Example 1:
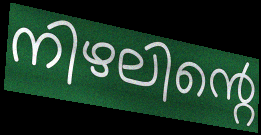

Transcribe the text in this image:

നിഴലിന്റെ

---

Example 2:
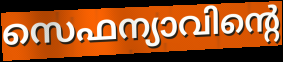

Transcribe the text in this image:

സെഫന്യാവിന്റെ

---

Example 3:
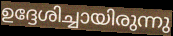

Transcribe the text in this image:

ഉദ്ദേശിച്ചായിരുന്നു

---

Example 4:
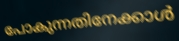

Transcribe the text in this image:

പോകുന്നതിനേക്കാൾ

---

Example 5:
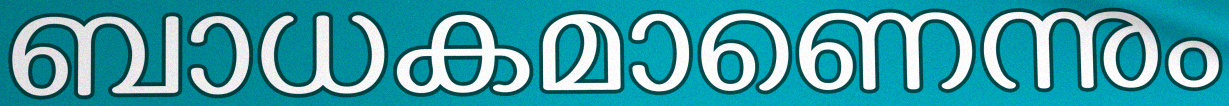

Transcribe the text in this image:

ബാധകമാണെന്നും